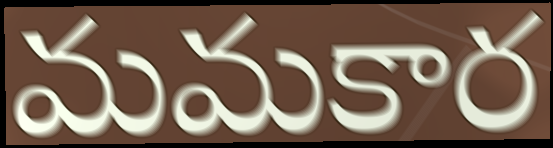
మమకార